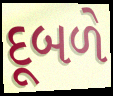
દૂબળે